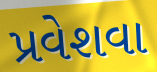
પ્રવેશવા